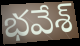
భవేశ్